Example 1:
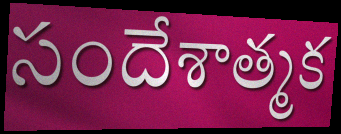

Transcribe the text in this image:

సందేశాత్మక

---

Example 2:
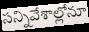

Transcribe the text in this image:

సన్నివేశాల్లోనూ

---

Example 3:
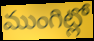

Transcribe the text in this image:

ముంగిట్లో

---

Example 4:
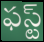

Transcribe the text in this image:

ఫస్ట్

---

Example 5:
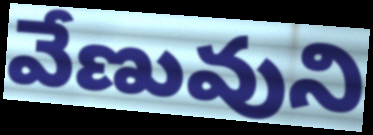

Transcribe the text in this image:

వేణువుని